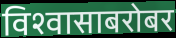
विश्वासाबरोबर